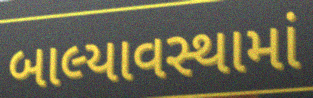
બાલ્યાવસ્થામાં